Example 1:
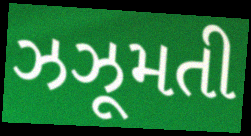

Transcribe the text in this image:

ઝઝૂમતી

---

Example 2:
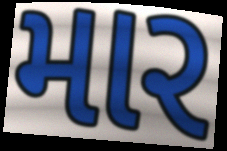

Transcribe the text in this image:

માર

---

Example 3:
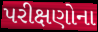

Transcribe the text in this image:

પરીક્ષણોના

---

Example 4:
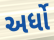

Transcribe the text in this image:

અર્ધો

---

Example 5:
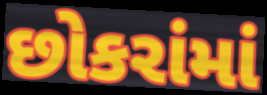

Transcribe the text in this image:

છોકરાંમાં